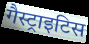
गैस्ट्राइटिस